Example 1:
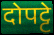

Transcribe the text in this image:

दोपट्टे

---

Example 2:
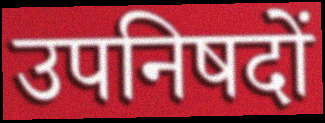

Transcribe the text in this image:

उपनिषदों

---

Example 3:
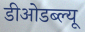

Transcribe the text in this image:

डीओडब्ल्यू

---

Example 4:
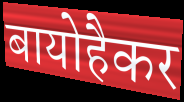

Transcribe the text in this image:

बायोहैकर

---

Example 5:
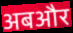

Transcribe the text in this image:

अबऔर